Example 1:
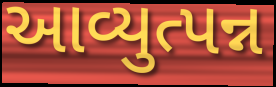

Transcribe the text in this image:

આવ્યુત્પન્ન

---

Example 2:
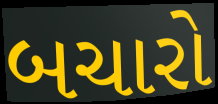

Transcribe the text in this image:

બચારો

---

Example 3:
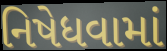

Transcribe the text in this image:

નિષેધવામાં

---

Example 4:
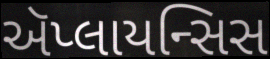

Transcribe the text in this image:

ઍપ્લાયન્સિસ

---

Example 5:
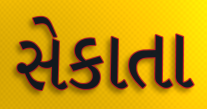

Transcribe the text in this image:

સેકાતા